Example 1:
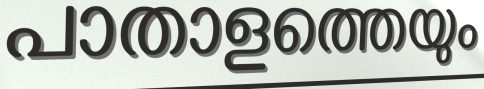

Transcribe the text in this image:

പാതാളത്തെയും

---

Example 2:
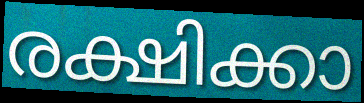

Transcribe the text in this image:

രക്ഷിക്കാ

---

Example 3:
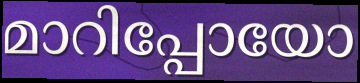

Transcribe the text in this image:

മാറിപ്പോയോ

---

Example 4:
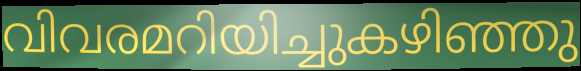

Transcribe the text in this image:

വിവരമറിയിച്ചുകഴിഞ്ഞു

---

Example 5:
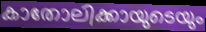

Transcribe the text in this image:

കാതോലിക്കായുടെയും